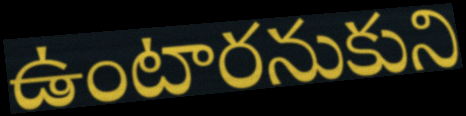
ఉంటారనుకుని